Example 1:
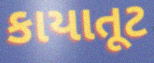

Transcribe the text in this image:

કાયાતૂટ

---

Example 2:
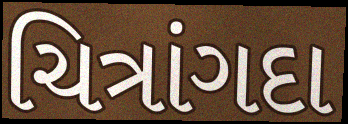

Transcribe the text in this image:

ચિત્રાંગદા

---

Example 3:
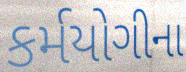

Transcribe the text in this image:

કર્મયોગીના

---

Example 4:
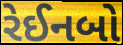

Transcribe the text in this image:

રેઈનબો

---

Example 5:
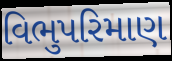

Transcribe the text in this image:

વિભુપરિમાણ